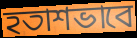
হতাশভাবে